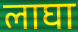
लाघा